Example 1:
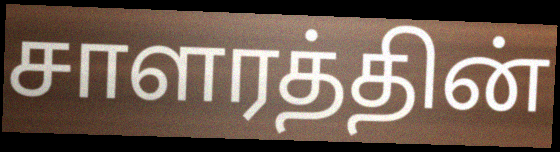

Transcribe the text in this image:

சாளரத்தின்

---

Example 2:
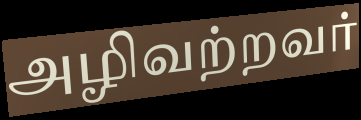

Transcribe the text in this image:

அழிவற்றவர்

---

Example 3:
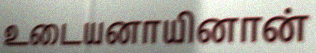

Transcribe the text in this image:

உடையனாயினான்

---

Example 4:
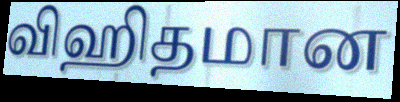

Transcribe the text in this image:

விஹிதமான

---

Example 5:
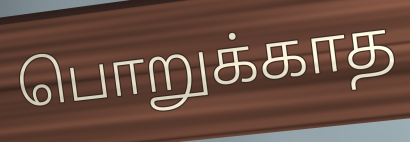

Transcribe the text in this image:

பொறுக்காத